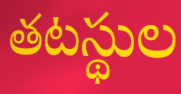
తటస్థుల